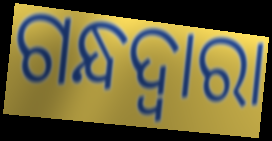
ଗନ୍ଧଦ୍ୱାରା